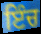
ਇੰਚ